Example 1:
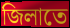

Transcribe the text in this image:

জিলাতে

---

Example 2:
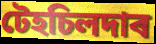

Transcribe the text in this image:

টেহচিলদাৰ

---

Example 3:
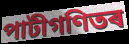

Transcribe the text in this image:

পাটীগণিতৰ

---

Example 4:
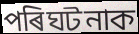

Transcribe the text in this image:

পৰিঘটনাক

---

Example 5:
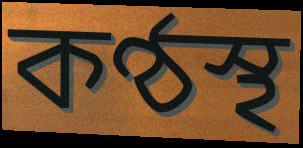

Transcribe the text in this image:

কণ্ঠস্থ